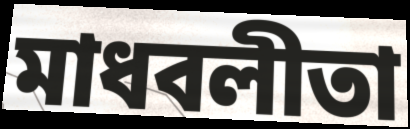
মাধবলীতা